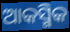
ଆକସ୍ମିକ